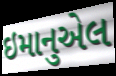
ઇમાનુએલ